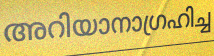
അറിയാനാഗ്രഹിച്ച